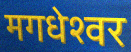
मगधेश्वर